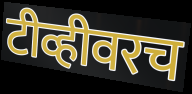
टीव्हीवरच